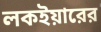
লকইয়ারের